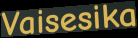
Vaisesika